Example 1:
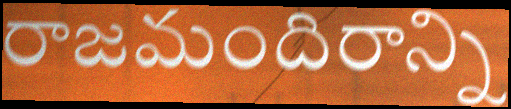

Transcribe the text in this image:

రాజమందిరాన్ని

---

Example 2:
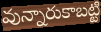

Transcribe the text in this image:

వున్నారుకాబట్టి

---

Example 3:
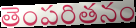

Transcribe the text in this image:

తెంపరితనం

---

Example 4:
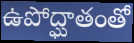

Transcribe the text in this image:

ఉపోద్ఘాతంతో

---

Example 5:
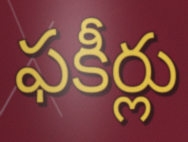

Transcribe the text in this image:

ఫకీర్లు